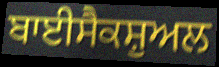
ਬਾਈਸੈਕਸ਼ੁਅਲ